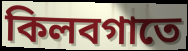
কিলবগাতে